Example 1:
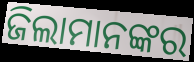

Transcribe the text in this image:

ଜିଲାମାନଙ୍କର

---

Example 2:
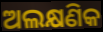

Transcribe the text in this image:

ଅଲକ୍ଷଣିକ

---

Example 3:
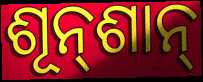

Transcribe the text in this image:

ଶୂନ୍‌ଶାନ୍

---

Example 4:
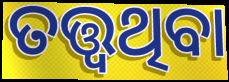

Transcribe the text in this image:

ତତ୍ତ୍ୱଥିବା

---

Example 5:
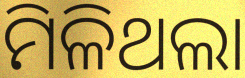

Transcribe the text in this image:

ମିଳିଥଲା